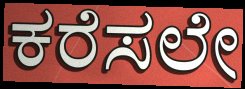
ಕರೆಸಲೇ